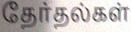
தேர்தல்கள்